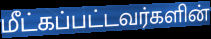
மீட்கப்பட்டவர்களின்